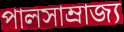
পালসাম্রাজ্য